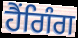
ਹੈਂਗਿੰਗ